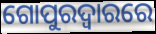
ଗୋପୁରଦ୍ବାରରେ